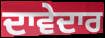
ਦਾਵੇਦਾਰ